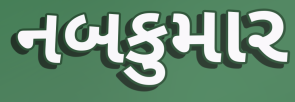
નબકુમાર